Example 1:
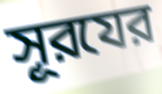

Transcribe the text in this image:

সূরযের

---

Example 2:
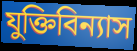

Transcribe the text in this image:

যুক্তিবিন্যাস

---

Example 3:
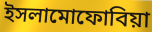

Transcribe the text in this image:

ইসলামোফোবিয়া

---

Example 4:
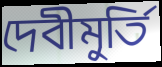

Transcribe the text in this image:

দেবীমুর্তি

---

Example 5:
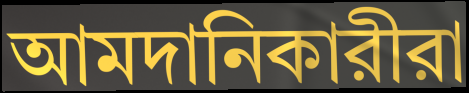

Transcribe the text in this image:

আমদানিকারীরা